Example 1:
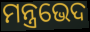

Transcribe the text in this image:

ମନ୍ତ୍ରଭେଦ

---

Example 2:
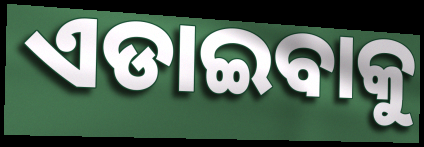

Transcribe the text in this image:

ଏଡାଇବାକୁ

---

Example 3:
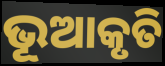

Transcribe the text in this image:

ଭୂଆକୃତି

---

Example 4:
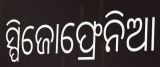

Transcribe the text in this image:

ସ୍ପିଜୋଫ୍ରେନିଆ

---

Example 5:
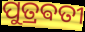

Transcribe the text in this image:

ପୁତ୍ରଵତୀ